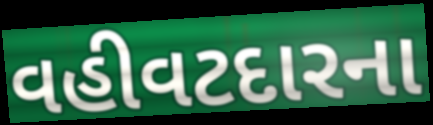
વહીવટદારના